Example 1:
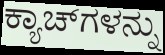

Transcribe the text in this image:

ಕ್ಯಾಚ್‌ಗಳನ್ನು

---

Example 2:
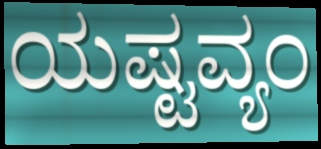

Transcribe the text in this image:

ಯಷ್ಟವ್ಯಂ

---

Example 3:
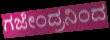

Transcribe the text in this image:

ಗಜೇಂದ್ರನಿಂದ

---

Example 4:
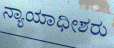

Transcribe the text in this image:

ನ್ಯಾಯಾಧೀಶರು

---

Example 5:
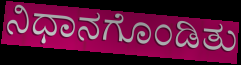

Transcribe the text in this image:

ನಿಧಾನಗೊಂಡಿತು